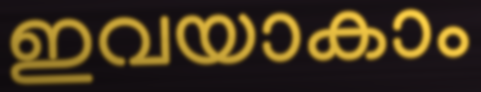
ഇവയാകാം